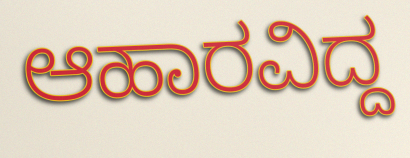
ಆಹಾರವಿದ್ದ